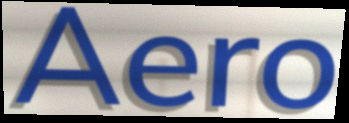
Aero